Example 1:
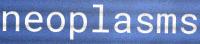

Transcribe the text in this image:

neoplasms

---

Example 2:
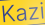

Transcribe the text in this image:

Kazi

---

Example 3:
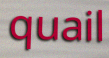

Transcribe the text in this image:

quail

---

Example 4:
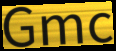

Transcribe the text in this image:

Gmc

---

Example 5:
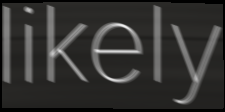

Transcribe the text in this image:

likely